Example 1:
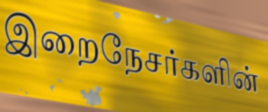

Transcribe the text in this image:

இறைநேசர்களின்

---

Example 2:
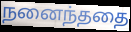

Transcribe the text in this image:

நனைந்ததை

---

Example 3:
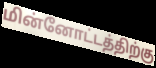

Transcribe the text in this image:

மின்னோட்டத்திற்கு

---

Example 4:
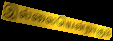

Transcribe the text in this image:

இல்லையென்றாகும்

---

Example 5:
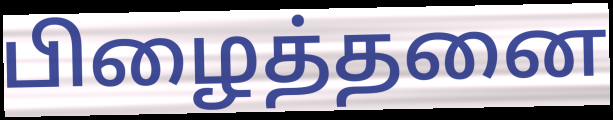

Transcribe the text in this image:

பிழைத்தனை